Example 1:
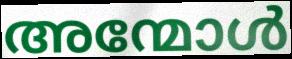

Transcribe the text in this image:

അന്മോൾ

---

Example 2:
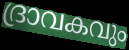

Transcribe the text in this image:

ദ്രാവകവും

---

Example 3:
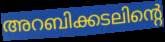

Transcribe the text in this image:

അറബിക്കടലിന്റെ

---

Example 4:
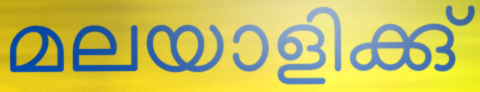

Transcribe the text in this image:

മലയാളിക്കു്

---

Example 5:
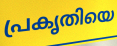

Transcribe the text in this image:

പ്രകൃതിയെ